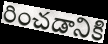
రించడానికి